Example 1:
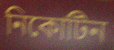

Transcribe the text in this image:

নিকোটিন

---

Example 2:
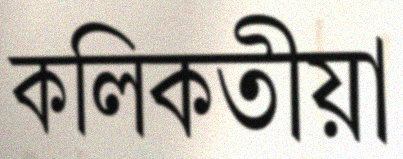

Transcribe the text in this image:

কলিকতীয়া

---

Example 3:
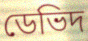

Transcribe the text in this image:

ডেভিদ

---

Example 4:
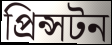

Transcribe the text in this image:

প্ৰিন্সটন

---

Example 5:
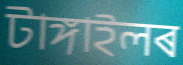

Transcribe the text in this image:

টাঙ্গাইলৰ